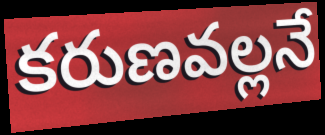
కరుణవల్లనే